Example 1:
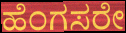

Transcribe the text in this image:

ಹೆಂಗಸರೇ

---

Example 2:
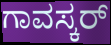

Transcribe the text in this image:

ಗಾವಸ್ಕರ್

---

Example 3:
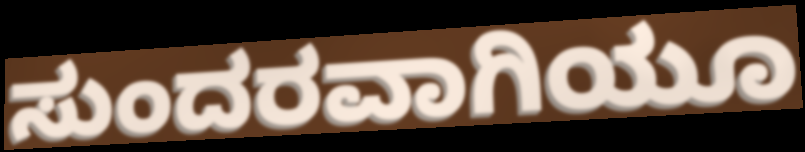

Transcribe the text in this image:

ಸುಂದರವಾಗಿಯೂ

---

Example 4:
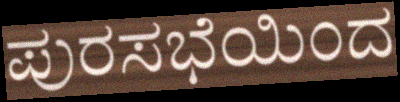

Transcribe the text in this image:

ಪುರಸಭೆಯಿಂದ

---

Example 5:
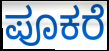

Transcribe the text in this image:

ಪೂಕರೆ